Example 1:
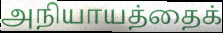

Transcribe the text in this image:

அநியாயத்தைக்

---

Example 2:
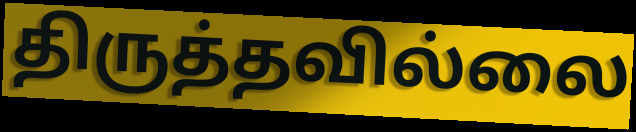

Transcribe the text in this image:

திருத்தவில்லை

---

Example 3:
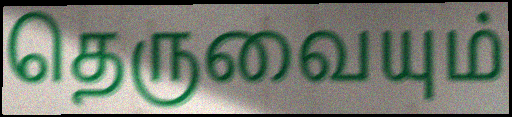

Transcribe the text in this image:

தெருவையும்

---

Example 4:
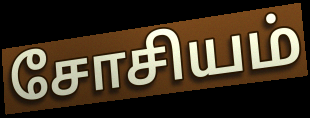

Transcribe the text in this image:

சோசியம்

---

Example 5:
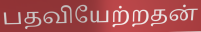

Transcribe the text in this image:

பதவியேற்றதன்